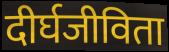
दीर्घजीविता